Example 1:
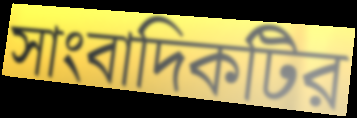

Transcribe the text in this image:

সাংবাদিকটির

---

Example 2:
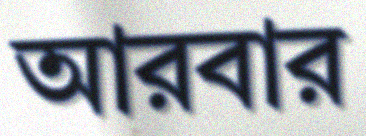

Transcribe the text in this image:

আরবার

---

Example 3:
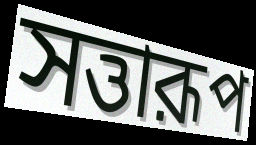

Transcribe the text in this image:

সত্তারূপ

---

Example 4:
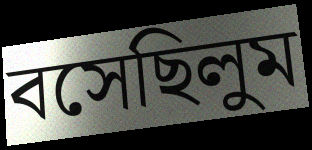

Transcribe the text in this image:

বসেছিলুম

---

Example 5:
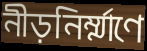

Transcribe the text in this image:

নীড়নির্ম্মাণে